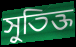
সুতিক্ত